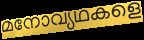
മനോവ്യഥകളെ